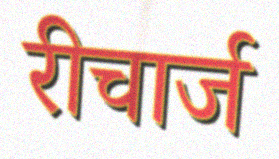
रीचार्ज